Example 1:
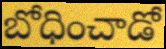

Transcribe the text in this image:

బోధించాడో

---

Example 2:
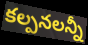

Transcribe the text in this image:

కల్పనలన్నీ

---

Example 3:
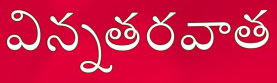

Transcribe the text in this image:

విన్నతరవాత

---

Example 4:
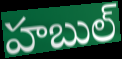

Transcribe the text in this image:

హబుల్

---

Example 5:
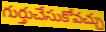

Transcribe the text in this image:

గుర్తుచేసుకోవచ్చు